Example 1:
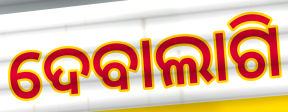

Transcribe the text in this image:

ଦେବାଲାଗି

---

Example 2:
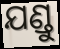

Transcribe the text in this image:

ଯଣ୍ଡୁ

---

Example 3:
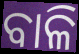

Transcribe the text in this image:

ବାଳି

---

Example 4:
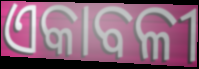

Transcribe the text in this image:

ଏକାବଳୀ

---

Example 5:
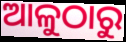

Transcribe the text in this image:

ଆଳୁଠାରୁ